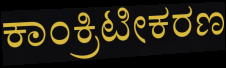
ಕಾಂಕ್ರಿಟೀಕರಣ